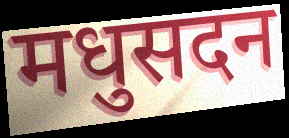
मधुसदन